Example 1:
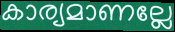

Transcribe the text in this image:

കാര്യമാണല്ലേ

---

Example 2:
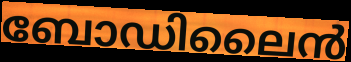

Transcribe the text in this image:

ബോഡിലൈൻ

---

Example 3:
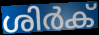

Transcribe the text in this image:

ശിർക്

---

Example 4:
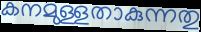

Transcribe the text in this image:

കനമുള്ളതാകുന്നതു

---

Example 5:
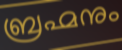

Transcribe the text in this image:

ബ്രഹ്മനും